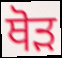
ਥੋੜ